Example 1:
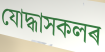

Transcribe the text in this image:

যোদ্ধাসকলৰ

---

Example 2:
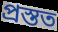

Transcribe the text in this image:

প্ৰস্তত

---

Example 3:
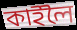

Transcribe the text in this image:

কাইলৈ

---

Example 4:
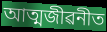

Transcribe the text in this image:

আত্মজীৱনীত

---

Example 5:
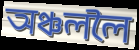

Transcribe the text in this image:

অঞ্চললৈ